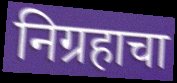
निग्रहाचा